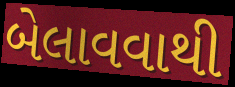
બેલાવવાથી